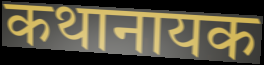
कथानायक